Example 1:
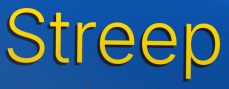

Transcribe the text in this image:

Streep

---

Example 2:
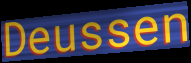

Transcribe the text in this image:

Deussen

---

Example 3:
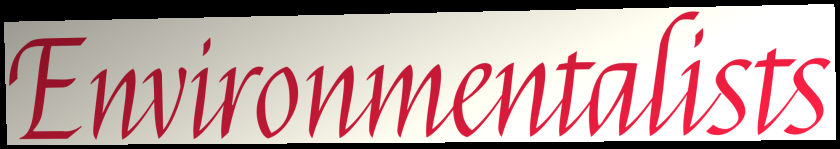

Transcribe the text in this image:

Environmentalists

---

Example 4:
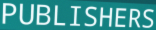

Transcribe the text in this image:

PUBLISHERS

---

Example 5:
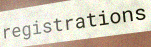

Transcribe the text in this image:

registrations